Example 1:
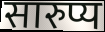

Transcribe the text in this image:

सारुप्य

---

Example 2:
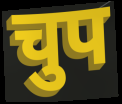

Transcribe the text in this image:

चुप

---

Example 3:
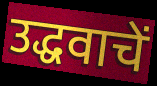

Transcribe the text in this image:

उद्धवाचें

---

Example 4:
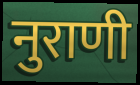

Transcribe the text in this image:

नुराणी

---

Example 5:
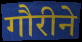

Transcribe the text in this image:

गौरीने